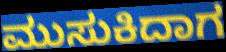
ಮುಸುಕಿದಾಗ